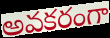
అవకరంగా